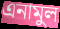
এনামুল